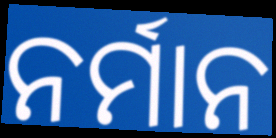
ନର୍ମାନ